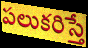
పలుకరిస్తే